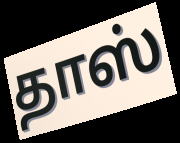
தாஸ்